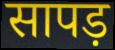
सापड़